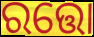
ରତ୍ତୋ